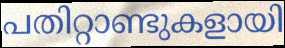
പതിറ്റാണ്ടുകളായി